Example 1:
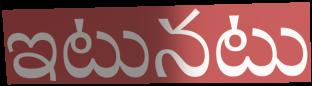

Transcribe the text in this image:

ఇటునటు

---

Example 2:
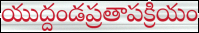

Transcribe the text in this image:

యుద్దండప్రతాపక్రియం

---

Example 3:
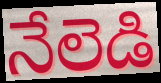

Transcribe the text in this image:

నేలెడి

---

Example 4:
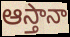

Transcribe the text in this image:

ఆస్తానా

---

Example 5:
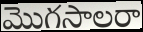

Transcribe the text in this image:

మొగసాలరా